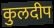
कुलदीप